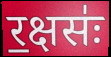
र॒क्षसः॑